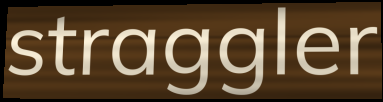
straggler